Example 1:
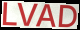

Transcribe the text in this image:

LVAD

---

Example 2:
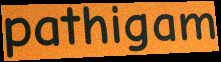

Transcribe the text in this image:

pathigam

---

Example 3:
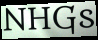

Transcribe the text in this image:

NHGs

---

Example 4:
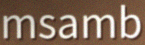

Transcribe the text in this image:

msamb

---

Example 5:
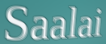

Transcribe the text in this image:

Saalai